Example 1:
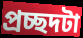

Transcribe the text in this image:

প্রচ্ছদটা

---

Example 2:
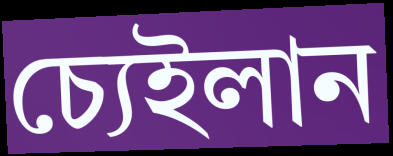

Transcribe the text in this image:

চ্যেইলান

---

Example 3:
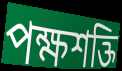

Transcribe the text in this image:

পক্ষশক্তি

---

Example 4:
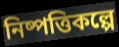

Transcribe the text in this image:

নিষ্পত্তিকল্পে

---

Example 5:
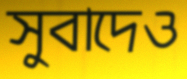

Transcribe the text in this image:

সুবাদেও